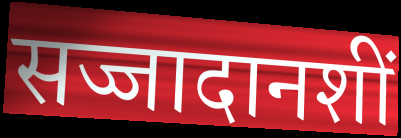
सज्जादानशीं